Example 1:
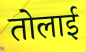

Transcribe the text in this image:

तोलाई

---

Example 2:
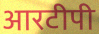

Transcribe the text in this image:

आरटीपी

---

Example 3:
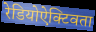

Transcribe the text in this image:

रेडियोऐक्टिवता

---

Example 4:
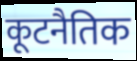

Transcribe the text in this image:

कूटनैतिक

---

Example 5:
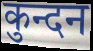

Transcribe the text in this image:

कुन्दन